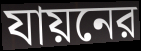
যায়নের